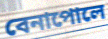
বেনাপোলে